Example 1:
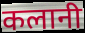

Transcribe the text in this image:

कलानी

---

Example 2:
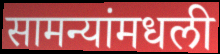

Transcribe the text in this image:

सामन्यांमधली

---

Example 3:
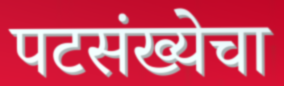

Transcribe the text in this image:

पटसंख्येचा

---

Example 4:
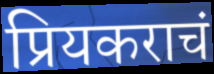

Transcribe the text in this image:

प्रियकराचं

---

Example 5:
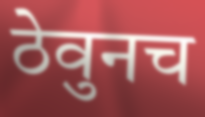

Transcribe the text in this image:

ठेवुनच